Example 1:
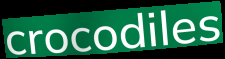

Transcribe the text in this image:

crocodiles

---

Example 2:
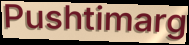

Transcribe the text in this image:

Pushtimarg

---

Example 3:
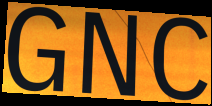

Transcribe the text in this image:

GNC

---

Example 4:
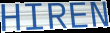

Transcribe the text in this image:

HIREN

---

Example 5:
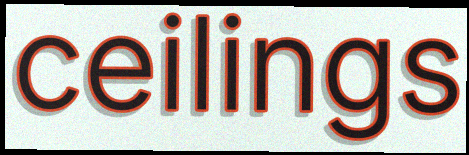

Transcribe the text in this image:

ceilings